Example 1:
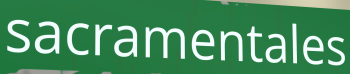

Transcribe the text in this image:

sacramentales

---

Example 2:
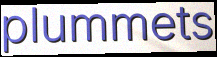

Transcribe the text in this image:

plummets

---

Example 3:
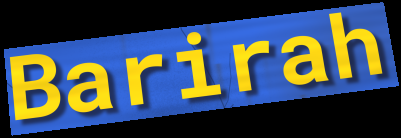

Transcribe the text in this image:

Barirah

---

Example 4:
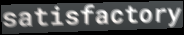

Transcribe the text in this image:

satisfactory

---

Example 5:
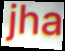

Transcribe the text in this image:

jha